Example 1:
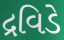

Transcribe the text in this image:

દ્રવિડે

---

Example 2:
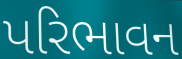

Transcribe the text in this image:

પરિભાવન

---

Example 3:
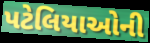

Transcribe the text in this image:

પટેલિયાઓની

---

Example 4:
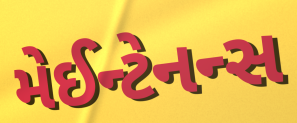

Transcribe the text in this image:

મેઈન્ટેનન્સ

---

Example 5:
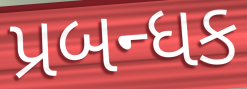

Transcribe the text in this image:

પ્રબન્ધક